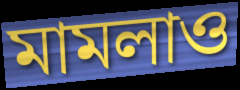
মামলাও